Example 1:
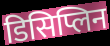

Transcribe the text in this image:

डिसिप्लिन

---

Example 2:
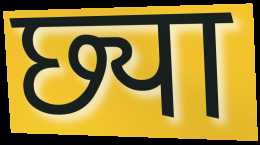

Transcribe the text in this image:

छ्या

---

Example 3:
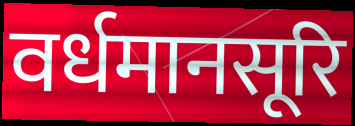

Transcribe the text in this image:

वर्धमानसूरि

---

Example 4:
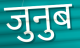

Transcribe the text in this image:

जुनुब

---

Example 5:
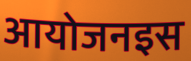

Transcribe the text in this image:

आयोजनइस